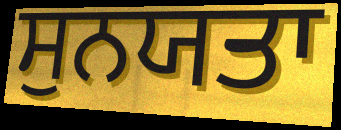
ਸੁਨਯਤਾ